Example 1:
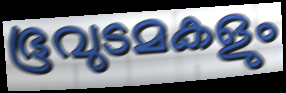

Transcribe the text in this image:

ഭൂവുടമകളും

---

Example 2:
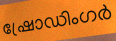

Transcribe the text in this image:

ഷ്രോഡിംഗർ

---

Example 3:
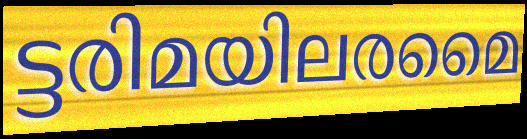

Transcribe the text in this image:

ട്ടരിമയിലരമൈ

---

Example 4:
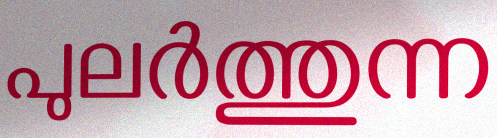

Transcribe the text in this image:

പുലർത്തുന്ന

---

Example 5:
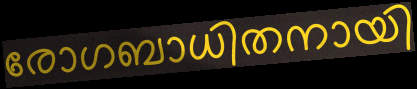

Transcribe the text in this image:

രോഗബാധിതനായി